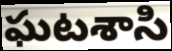
ఘటశాసి